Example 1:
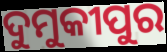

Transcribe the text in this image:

ଦୁମୁକୀପୁର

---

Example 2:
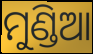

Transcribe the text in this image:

ମୁଣ୍ଡିଆ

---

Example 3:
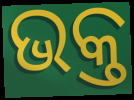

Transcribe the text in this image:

ଭକ୍ତ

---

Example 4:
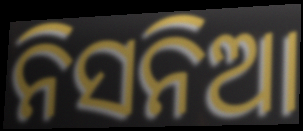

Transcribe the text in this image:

ନିସନିଆ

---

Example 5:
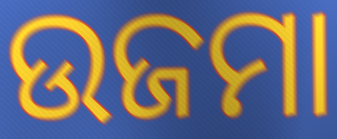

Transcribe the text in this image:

ଉଜମା